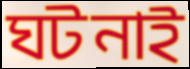
ঘটনাই